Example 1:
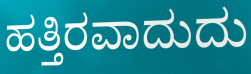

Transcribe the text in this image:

ಹತ್ತಿರವಾದುದು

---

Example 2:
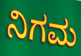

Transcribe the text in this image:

ನಿಗಮ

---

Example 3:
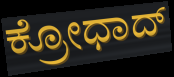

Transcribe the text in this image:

ಕ್ರೋಧಾದ್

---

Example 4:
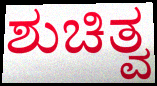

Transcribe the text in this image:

ಶುಚಿತ್ವ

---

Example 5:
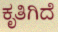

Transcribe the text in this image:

ಕೃತಿಗಿದೆ